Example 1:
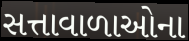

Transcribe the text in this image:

સત્તાવાળાઓના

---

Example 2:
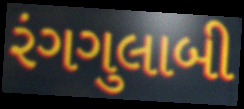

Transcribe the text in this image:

રંગગુલાબી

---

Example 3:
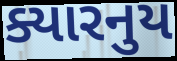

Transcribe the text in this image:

ક્યારનુય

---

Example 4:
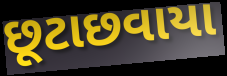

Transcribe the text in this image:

છૂટાછવાયા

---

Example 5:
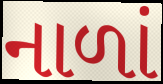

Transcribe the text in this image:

નાળાં